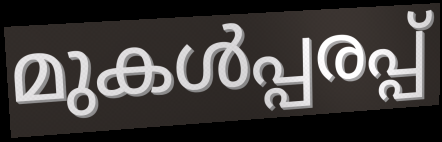
മുകൾപ്പരപ്പ്